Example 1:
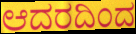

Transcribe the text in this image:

ಆದರದಿಂದ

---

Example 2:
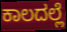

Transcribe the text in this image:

ಕಾಲದಲ್ಲೆ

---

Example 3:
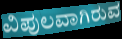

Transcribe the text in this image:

ವಿಪುಲವಾಗಿರುವ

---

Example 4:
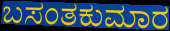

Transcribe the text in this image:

ಬಸಂತಕುಮಾರ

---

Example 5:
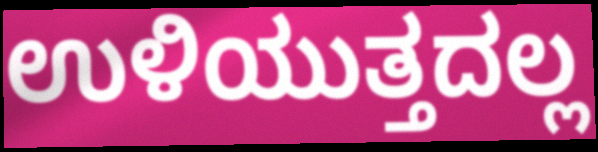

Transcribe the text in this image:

ಉಳಿಯುತ್ತದಲ್ಲ